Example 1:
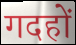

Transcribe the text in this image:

गदहों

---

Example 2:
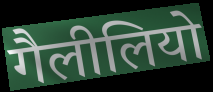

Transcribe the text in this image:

गैलीलियो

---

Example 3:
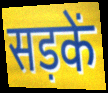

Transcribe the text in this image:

सड़कें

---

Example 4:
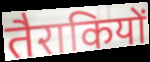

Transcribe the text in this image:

तैराकियों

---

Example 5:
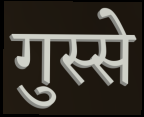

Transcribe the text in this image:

गुस्से